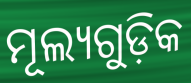
ମୂଲ୍ୟଗୁଡ଼ିକ